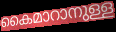
കൈമാറാനുള്ള